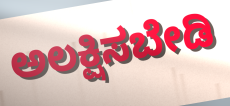
ಅಲಕ್ಷಿಸಬೇಡಿ